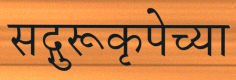
सद्गुरूकृपेच्या